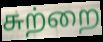
சுற்றை